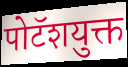
पोटॅशयुक्त